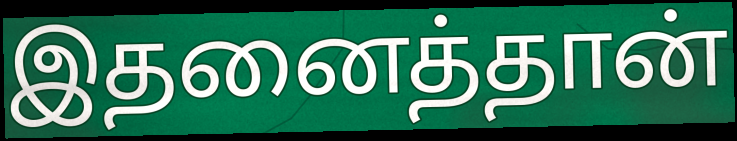
இதனைத்தான்